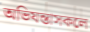
অভিযন্তাসকলে